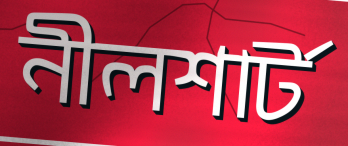
নীলশার্ট